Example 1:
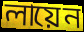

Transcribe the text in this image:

লায়েন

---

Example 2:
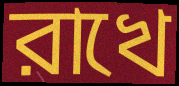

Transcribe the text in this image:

রাখে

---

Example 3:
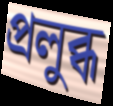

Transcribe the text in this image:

প্রলুব্ধ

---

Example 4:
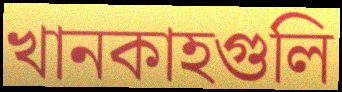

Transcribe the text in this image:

খানকাহগুলি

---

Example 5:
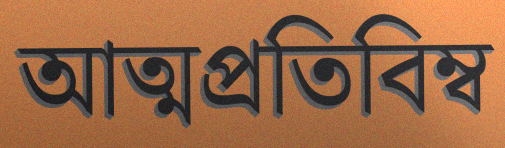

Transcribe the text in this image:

আত্মপ্রতিবিম্ব